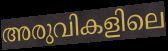
അരുവികളിലെ